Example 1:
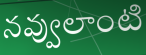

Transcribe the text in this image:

నవ్వులాంటి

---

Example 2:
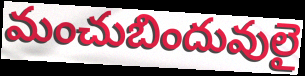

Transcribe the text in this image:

మంచుబిందువులై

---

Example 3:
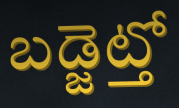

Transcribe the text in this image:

బడ్జెట్తో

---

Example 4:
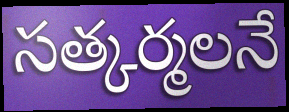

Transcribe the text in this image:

సత్కర్మలనే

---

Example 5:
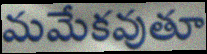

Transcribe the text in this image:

మమేకవుతూ